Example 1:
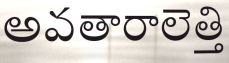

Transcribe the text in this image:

అవతారాలెత్తి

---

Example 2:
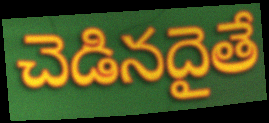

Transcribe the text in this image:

చెడినదైతే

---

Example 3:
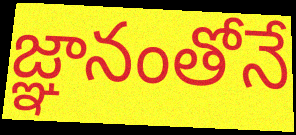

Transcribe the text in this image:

జ్ఞానంతోనే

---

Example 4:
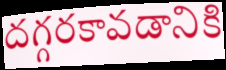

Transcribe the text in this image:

దగ్గరకావడానికి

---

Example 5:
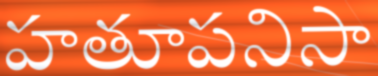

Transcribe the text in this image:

హతూపనిసా